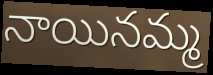
నాయినమ్మ